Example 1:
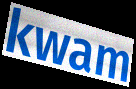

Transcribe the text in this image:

kwam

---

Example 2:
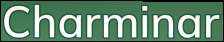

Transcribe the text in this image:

Charminar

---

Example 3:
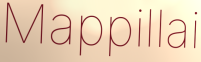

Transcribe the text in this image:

Mappillai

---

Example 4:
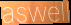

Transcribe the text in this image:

aswell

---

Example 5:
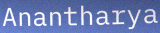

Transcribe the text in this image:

Anantharya